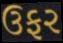
ઉફર